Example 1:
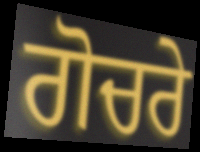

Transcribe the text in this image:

ਗੋਚਰੇ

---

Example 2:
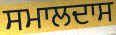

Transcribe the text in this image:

ਸਮਾਲਦਾਸ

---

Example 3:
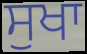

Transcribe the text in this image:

ਸੁਖਾ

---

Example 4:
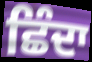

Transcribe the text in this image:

ਛਿੰਦਾ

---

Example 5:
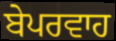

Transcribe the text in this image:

ਬੇਪਰਵਾਹ